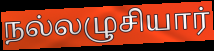
நல்லழுசியார்